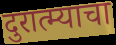
दुरात्म्याचा